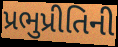
પ્રભુપ્રીતિની